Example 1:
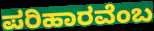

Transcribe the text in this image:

ಪರಿಹಾರವೆಂಬ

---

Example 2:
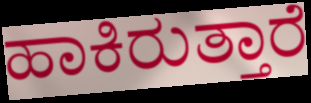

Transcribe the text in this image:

ಹಾಕಿರುತ್ತಾರೆ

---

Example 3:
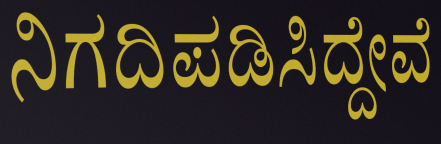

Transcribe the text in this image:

ನಿಗದಿಪಡಿಸಿದ್ದೇವೆ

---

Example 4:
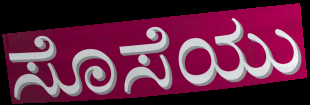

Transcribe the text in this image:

ಸೊಸೆಯು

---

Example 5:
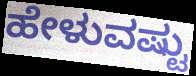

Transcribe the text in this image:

ಹೇಳುವಷ್ಟು